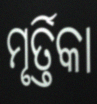
ମୃର୍ତ୍ତିକା